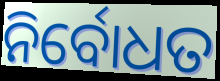
ନିର୍ବୋଧତ